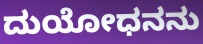
ದುಯೋಧನನು